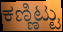
ಕಣ್ಣಿಟ್ಟು